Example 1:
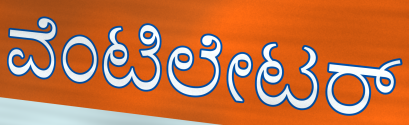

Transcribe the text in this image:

ವೆಂಟಿಲೇಟರ್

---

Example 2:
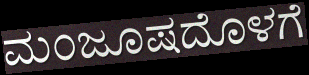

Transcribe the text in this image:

ಮಂಜೂಷದೊಳಗೆ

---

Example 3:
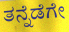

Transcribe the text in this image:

ತನ್ನೆಡೆಗೇ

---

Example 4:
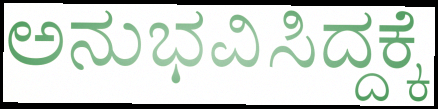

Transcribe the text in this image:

ಅನುಭವಿಸಿದ್ದಕ್ಕೆ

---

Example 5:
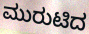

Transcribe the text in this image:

ಮುರುಟಿದ